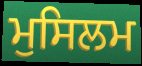
ਮੁਸਿਲਮ